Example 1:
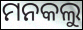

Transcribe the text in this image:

ମନକଲୁ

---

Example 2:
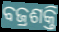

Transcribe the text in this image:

ବଜ୍ରଶକ୍ତି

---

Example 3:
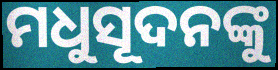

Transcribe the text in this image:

ମଧୁସୂଦନଙ୍କୁ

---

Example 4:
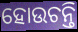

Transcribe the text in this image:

ହୋଉଚନ୍ତି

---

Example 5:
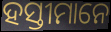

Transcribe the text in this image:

ହସ୍ତୀମାନେ